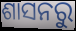
ଶାସନରୁ